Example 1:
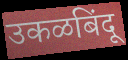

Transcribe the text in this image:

उकळबिंदू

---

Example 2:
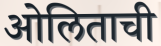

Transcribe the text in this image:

ओलिताची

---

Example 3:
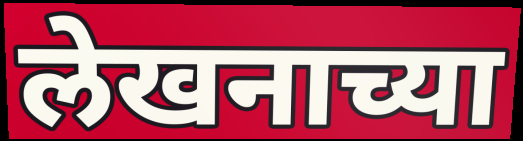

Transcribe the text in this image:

लेखनाच्या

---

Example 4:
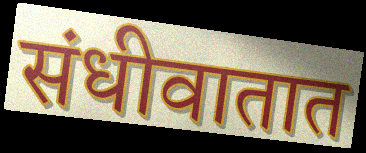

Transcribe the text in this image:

संधीवातात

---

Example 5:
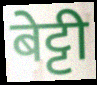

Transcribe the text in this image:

बेट्टी